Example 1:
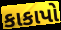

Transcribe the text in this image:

કાકાપો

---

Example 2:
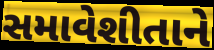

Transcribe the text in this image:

સમાવેશીતાને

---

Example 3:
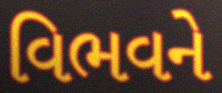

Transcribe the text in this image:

વિભવને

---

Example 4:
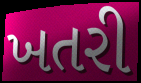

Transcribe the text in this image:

ખતરી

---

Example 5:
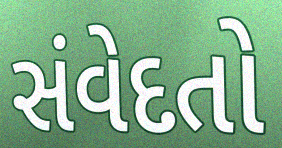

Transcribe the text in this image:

સંવેદતો